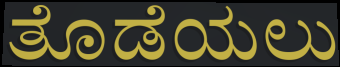
ತೊಡೆಯಲು